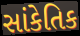
સાંકેતિક